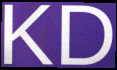
KD